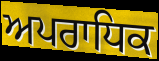
ਅਪਰਾਧਿਕ